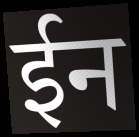
ईन